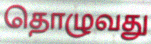
தொழுவது